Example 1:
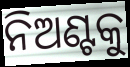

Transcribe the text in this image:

ନିଅଣ୍ଟକୁ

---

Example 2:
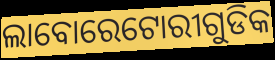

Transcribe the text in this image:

ଲାବୋରେଟୋରୀଗୁଡିକ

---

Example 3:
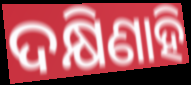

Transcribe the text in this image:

ଦକ୍ଷିଣାହି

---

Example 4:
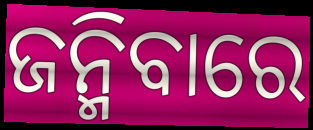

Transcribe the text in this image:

ଜନ୍ମିବାରେ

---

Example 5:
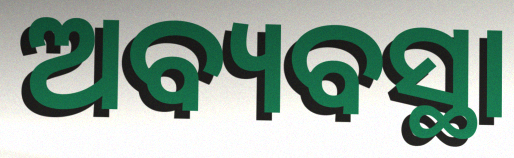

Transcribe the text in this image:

ଅବ୍ୟବସ୍ଥା